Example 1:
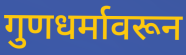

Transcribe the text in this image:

गुणधर्मावरून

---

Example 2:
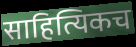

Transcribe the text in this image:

साहित्यिकच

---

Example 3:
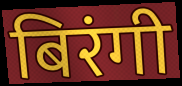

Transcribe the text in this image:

बिरंगी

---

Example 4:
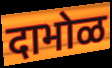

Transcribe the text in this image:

दाभोळ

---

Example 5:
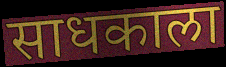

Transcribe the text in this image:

साधकाला